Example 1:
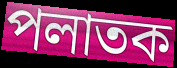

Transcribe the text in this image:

পলাতক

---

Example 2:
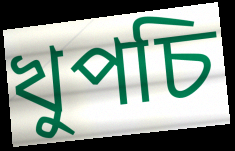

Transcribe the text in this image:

খুপচি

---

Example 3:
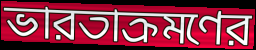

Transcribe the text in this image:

ভারতাক্রমণের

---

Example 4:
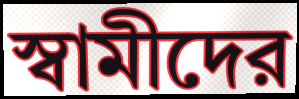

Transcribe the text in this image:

স্বামীদের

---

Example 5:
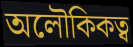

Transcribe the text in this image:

অলৌকিকত্ব